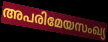
അപരിമേയസംഖ്യ